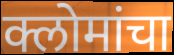
क्लोमांचा